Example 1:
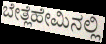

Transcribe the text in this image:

ಬೇತ್ಲೆಹೇಮಿನಲ್ಲಿ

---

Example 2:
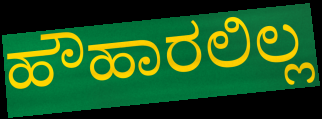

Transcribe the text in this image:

ಹೌಹಾರಲಿಲ್ಲ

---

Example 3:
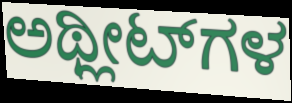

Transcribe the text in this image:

ಅಥ್ಲೀಟ್‌ಗಳ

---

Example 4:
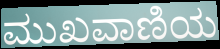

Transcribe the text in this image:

ಮುಖವಾಣಿಯ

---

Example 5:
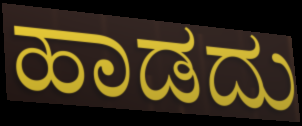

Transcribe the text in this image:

ಹಾಡದು